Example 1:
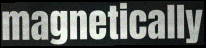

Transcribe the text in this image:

magnetically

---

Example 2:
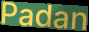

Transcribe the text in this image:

Padan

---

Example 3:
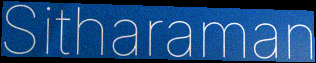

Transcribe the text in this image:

Sitharaman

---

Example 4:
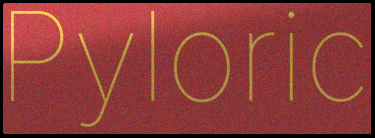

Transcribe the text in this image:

Pyloric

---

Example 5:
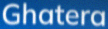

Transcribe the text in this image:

Ghatera